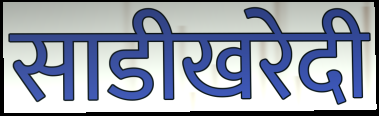
साडीखरेदी